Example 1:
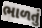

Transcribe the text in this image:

ભાળતું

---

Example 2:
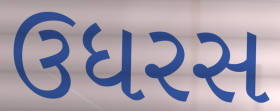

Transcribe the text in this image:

ઉધરસ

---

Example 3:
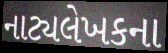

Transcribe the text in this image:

નાટ્યલેખકના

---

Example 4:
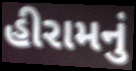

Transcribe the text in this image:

હીરામનું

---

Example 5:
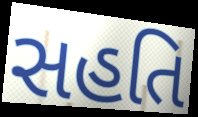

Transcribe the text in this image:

સહતિ